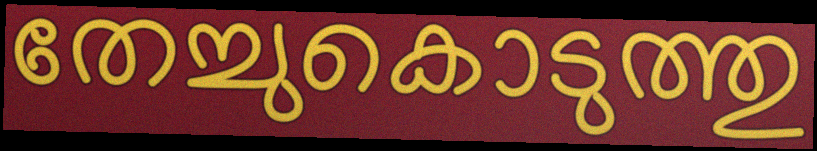
തേച്ചുകൊടുത്തു